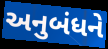
અનુબંધને